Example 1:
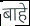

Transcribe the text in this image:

बाहे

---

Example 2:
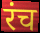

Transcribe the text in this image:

रंच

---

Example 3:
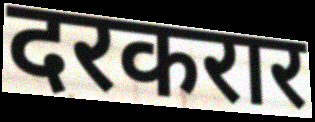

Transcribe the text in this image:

दरकरार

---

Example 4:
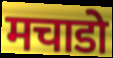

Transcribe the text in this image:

मचाडो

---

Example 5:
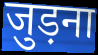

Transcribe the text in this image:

जुड़ना